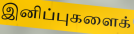
இனிப்புகளைக்